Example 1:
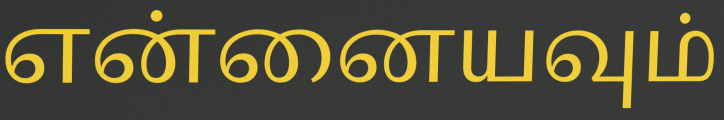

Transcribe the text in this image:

என்னையவும்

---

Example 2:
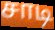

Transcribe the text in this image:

சாடி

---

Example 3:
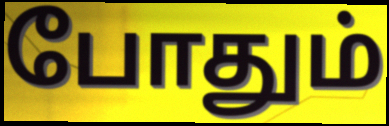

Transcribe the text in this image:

போதும்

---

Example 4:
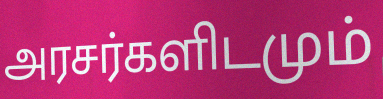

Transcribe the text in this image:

அரசர்களிடமும்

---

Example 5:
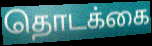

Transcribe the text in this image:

தொடக்கை